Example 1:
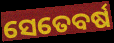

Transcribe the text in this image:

ସେତେବର୍ଷ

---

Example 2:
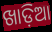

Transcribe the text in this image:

ଖାଡ଼ିଆ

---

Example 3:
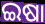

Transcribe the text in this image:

ଇଷା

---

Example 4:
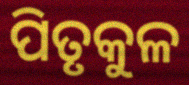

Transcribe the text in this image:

ପିତୃକୁଳ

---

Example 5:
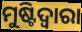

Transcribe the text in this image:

ମୁଷ୍ଟିଦ୍ୱାରା